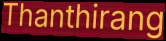
Thanthirang